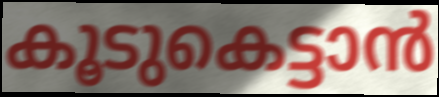
കൂടുകെട്ടാൻ